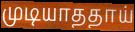
முடியாததாய்